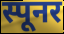
स्पूनर